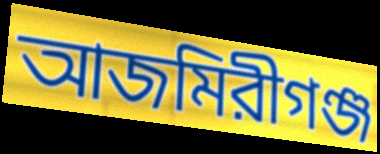
আজমিরীগঞ্জ